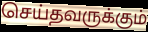
செய்தவருக்கும்